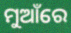
ମୁଆଁରେ